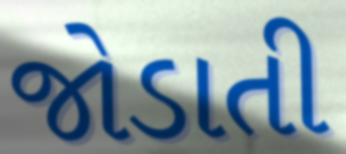
જોડાતી